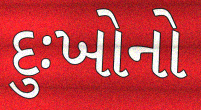
દુઃખોનો